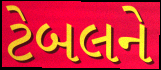
ટેબલને